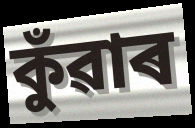
কুঁৱাৰ